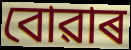
বোৱাৰ